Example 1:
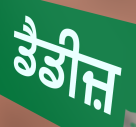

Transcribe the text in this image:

ਡੈਡੀਜ਼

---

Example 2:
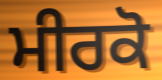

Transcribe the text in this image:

ਮੀਰਕੋ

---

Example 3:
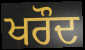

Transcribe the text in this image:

ਖਰੌਦ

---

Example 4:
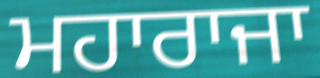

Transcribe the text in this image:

ਮਹਾਰਾਜਾ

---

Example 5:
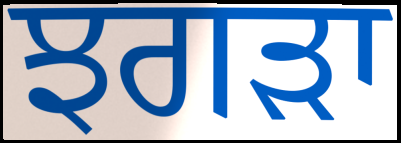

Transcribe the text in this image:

ਝਗੜਾ